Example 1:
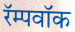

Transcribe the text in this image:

रॅम्पवॉक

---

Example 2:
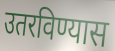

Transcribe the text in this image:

उतरविण्यास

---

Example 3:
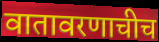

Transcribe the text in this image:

वातावरणाचीच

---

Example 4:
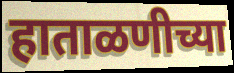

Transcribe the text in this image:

हाताळणीच्या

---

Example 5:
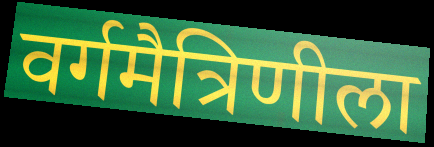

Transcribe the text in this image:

वर्गमैत्रिणीला